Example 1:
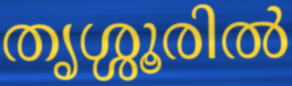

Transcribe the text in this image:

തൃശ്ശൂരിൽ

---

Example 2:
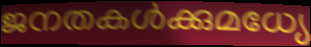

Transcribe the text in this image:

ജനതകൾക്കുമധ്യേ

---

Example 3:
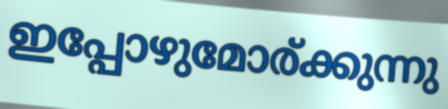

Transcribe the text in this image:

ഇപ്പോഴുമോര്ക്കുന്നു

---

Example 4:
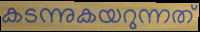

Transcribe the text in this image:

കടന്നുകയറുന്നത്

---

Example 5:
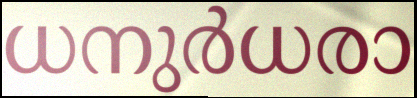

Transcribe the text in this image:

ധനുർധരാ